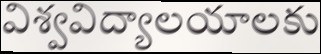
విశ్వవిద్యాలయాలకు